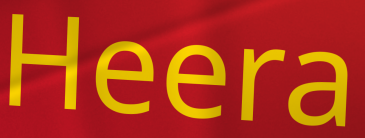
Heera